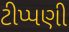
ટીપ્પણી